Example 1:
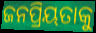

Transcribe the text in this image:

ଜନପ୍ରିୟତାକୁ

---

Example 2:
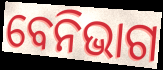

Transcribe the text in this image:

ବେନିଭାଗ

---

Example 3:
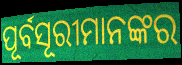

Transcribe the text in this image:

ପୂର୍ବସୂରୀମାନଙ୍କର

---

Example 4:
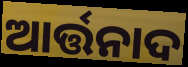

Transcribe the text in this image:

ଆର୍ତ୍ତନାଦ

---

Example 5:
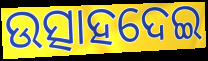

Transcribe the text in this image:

ଉତ୍ସାହଦେଇ